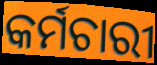
କର୍ମଚାରୀ